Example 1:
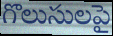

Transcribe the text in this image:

గొలుసులపై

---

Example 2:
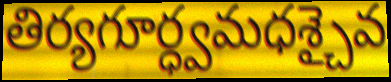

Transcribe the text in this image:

తిర్యగూర్ధ్వమధశ్చైవ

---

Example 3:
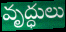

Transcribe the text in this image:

వృద్ధులు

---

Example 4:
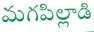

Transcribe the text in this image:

మగపిల్లాడి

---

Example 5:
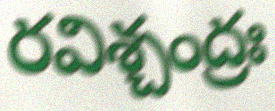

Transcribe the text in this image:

రవిశ్చంద్రః